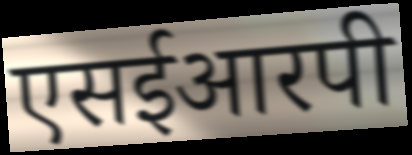
एसईआरपी